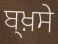
ਬ੍ਖ਼ਸੇ